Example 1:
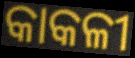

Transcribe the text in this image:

କାକଳୀ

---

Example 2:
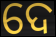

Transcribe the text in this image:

ଦେ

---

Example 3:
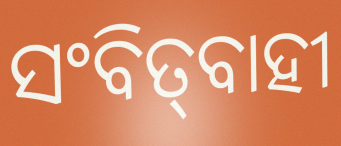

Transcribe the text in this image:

ସଂବିତ୍‌ବାହୀ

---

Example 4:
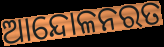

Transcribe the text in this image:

ଆନ୍ଦୋଳନରତ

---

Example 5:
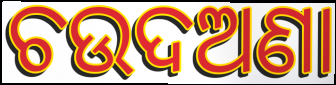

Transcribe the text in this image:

ଚଉଦଅଣା